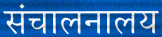
संचालनालय